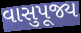
વાસુપૂજ્ય